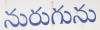
నురుగును